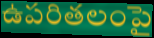
ఉపరితలంపై